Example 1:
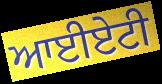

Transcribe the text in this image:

ਆਈਏਟੀ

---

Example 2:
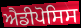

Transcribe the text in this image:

ਐਡੀਪੋਸਿਸ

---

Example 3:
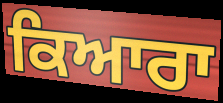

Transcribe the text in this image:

ਕਿਆਰਾ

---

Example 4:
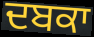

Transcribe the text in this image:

ਦਬਕਾ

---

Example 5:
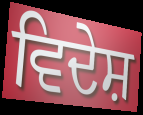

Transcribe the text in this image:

ਵਿਦੇਸ਼